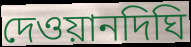
দেওয়ানদিঘি